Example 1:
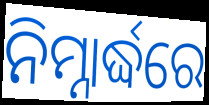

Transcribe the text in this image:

ନିମ୍ନାର୍ଦ୍ଧରେ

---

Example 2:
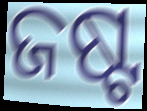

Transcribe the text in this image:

ଜଷ୍ଟ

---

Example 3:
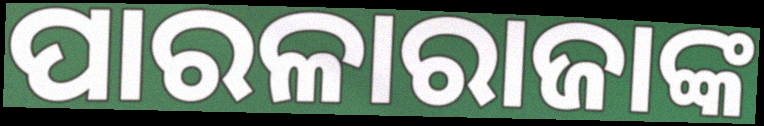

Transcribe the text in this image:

ପାରଳାରାଜାଙ୍କ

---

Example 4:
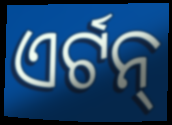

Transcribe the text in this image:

ଏର୍ଟନ୍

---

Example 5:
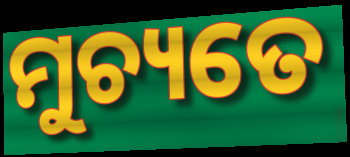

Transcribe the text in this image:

ମୁଚ୍ୟତେ